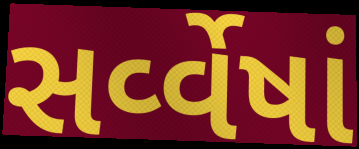
સર્વ્વેષાં